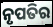
ନୃପତିର